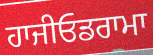
ਹਾਜੀਓਡਰਾਮਾ